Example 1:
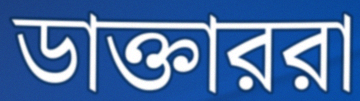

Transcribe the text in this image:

ডাক্তাররা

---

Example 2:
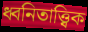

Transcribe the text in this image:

ধ্বনিতাত্ত্বিক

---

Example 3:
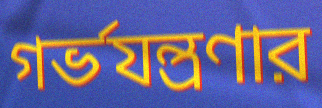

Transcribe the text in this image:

গর্ভযন্ত্রণার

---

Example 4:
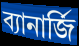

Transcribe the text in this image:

ব্যানার্জি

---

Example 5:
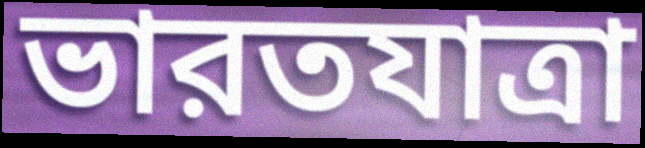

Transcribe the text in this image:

ভারতযাত্রা